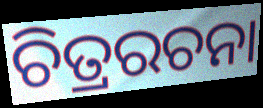
ଚିତ୍ରରଚନା